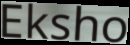
Eksho